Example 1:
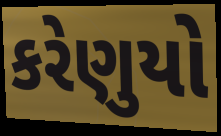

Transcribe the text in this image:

કરેણુયો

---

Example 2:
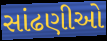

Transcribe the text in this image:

સાંઢણીઓ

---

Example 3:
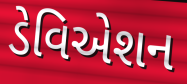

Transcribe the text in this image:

ડેવિએશન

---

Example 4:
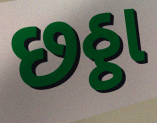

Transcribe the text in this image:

છઠ્ઠા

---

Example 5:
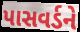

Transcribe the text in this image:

પાસવર્ડને